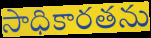
సాధికారతను